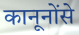
कानूनोंसे